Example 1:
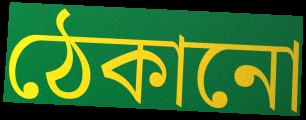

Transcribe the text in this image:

ঠেকানো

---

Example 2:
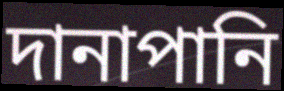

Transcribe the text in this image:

দানাপানি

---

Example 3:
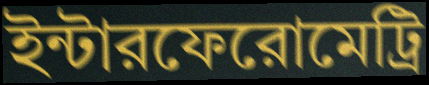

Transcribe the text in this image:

ইন্টারফেরোমেট্রি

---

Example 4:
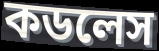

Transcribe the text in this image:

কডলেস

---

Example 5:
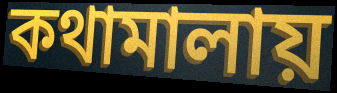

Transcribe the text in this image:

কথামালায়